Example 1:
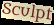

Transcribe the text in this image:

Sculpt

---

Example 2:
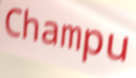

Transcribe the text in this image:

Champu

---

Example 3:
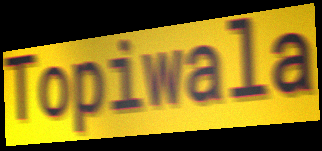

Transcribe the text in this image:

Topiwala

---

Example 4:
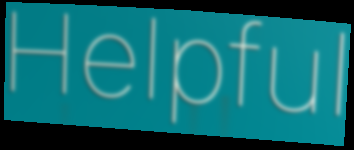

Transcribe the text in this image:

Helpful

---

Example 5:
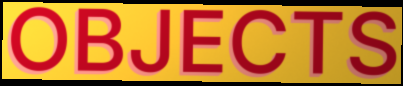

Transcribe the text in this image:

OBJECTS